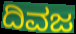
ದಿವಜ